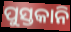
ପୁସ୍ତକାନି